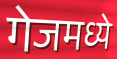
गेजमध्ये